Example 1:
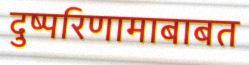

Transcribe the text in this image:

दुष्परिणामाबाबत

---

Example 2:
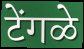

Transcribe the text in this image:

टेंगळे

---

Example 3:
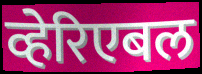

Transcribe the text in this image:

व्हेरिएबल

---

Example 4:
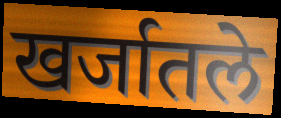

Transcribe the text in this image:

खर्जातले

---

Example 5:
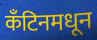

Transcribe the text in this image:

कँटिनमधून